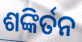
ଶଙ୍କିର୍ତନ